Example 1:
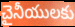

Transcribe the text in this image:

చైనీయులకు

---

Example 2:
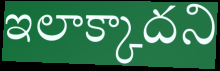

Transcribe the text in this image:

ఇలాక్కాదని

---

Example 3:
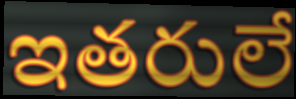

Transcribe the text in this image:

ఇతరులే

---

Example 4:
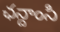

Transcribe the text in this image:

ఛన్దాంసి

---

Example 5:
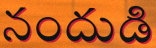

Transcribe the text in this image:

నందుడి